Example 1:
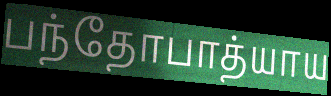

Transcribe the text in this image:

பந்தோபாத்யாய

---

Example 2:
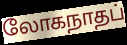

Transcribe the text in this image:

லோகநாதப்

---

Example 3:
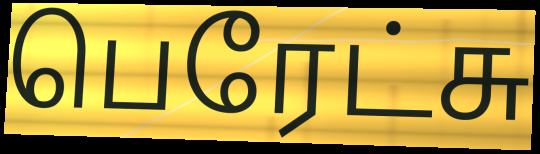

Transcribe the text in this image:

பெரேட்சு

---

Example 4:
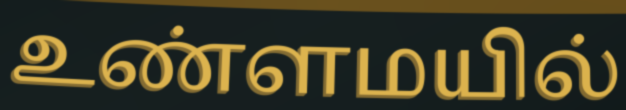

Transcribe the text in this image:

உண்ளமயில்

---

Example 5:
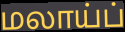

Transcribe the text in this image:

மலாய்ப்